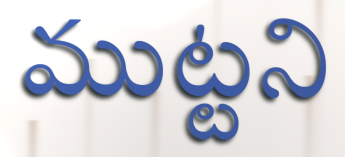
ముట్టని